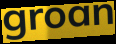
groan